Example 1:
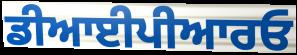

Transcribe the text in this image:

ਡੀਆਈਪੀਆਰਓ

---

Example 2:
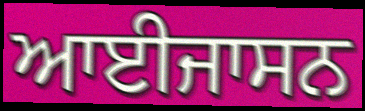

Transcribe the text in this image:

ਆਈਜਾਸਨ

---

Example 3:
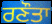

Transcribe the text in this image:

ਰਣੌਤਾ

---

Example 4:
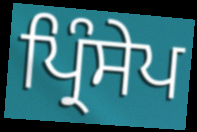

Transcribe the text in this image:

ਪ੍ਰਿੰਸੇਪ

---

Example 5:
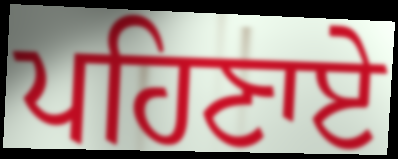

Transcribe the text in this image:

ਪਹਿਣਾਏ